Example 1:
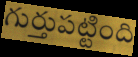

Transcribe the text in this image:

గుర్తుపట్టింది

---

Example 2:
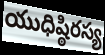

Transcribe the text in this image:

యుధిష్ఠిరస్య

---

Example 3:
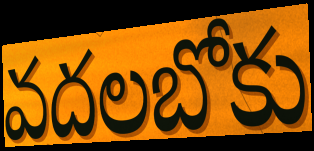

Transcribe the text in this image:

వదలబోకు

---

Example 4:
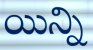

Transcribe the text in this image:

యిన్ని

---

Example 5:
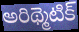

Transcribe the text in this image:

అరిథ్మెటిక్